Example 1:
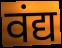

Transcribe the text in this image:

वंद्य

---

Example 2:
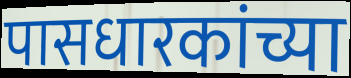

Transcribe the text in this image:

पासधारकांच्या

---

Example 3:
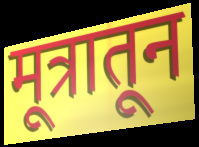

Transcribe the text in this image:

मूत्रातून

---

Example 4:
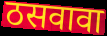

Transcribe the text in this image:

ठसवावा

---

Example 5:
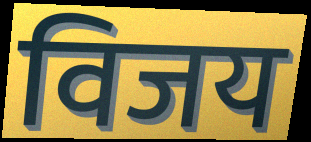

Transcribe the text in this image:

विजय